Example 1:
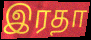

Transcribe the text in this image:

இரதா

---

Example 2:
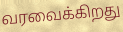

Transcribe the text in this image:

வரவைக்கிறது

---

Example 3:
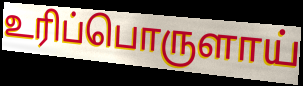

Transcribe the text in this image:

உரிப்பொருளாய்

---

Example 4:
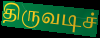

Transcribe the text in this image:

திருவடிச்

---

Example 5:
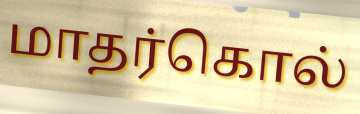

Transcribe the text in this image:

மாதர்கொல்